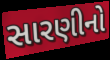
સારણીનો